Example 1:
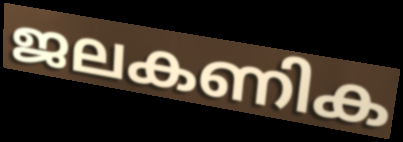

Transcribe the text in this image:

ജലകണിക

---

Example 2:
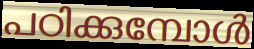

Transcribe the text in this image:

പഠിക്കുമ്പോൾ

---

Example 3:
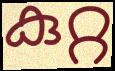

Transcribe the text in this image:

കുറ്റ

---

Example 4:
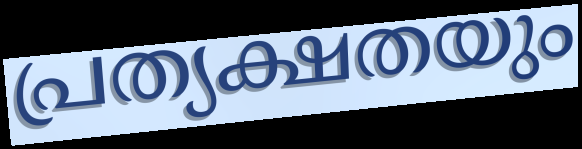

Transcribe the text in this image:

പ്രത്യക്ഷതയും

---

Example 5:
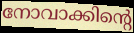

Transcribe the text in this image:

നോവാക്കിന്റെ